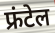
फ्रंटेल